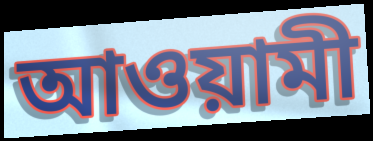
আওয়ামী